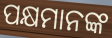
ପକ୍ଷମାନଙ୍କ